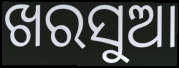
ଖରସୁଆ